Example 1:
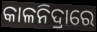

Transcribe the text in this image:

କାଳନିଦ୍ରାରେ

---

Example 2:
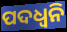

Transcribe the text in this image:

ପଦଧ୍ଵନି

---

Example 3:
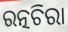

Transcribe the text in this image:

ରତ୍ନଚିରା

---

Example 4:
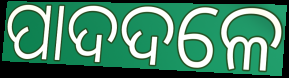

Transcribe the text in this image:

ପାଦଦଳେ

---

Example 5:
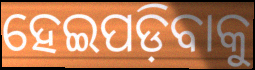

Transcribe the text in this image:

ହେଇପଡ଼ିବାକୁ